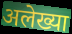
अलेख्या